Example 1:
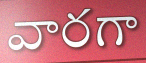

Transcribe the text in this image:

వారగా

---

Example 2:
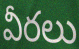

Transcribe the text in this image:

వీరలు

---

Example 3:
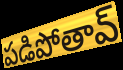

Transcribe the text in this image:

పడిపోతావ్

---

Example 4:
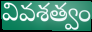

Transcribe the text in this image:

వివశత్వం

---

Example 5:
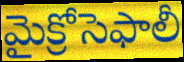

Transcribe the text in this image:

మైక్రోసెఫాలీ